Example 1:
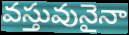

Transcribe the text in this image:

వస్తువునైనా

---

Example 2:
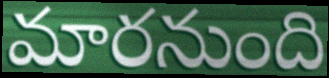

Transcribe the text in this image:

మారనుంది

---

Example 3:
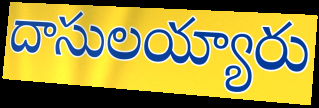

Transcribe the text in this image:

దాసులయ్యారు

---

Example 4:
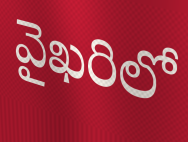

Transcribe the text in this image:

వైఖరిలో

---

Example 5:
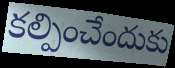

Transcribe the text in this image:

కల్పించేందుకు